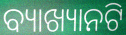
ବ୍ୟାଖ୍ୟାନଟି